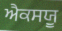
ਐਕਸਯੂ